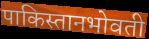
पाकिस्तानभोवती